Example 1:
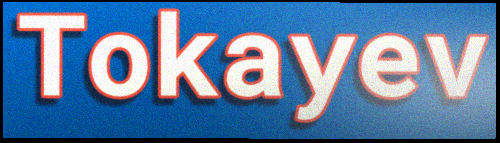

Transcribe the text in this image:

Tokayev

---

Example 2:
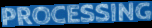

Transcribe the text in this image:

PROCESSING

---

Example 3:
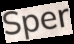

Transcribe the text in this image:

Sper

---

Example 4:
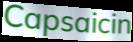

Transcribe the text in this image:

Capsaicin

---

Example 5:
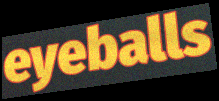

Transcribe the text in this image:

eyeballs